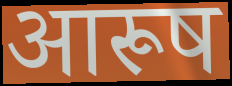
आरूष